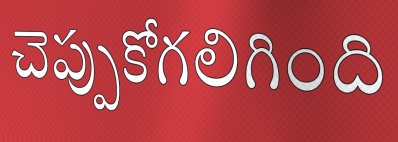
చెప్పుకోగలిగింది